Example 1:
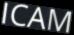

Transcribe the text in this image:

ICAM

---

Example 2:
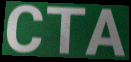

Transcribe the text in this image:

CTA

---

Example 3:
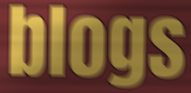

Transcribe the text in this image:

blogs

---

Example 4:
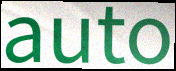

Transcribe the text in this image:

auto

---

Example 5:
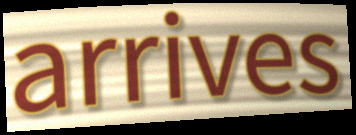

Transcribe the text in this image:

arrives